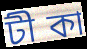
টীকা